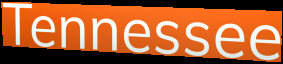
Tennessee